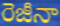
రెజీనా